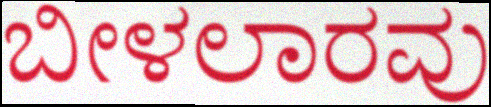
ಬೀಳಲಾರವು